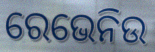
ରେଭେନିଉ